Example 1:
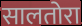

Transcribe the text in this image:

सालतोरा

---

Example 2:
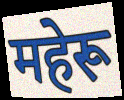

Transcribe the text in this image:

महेरू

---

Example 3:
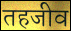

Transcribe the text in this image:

तहजीव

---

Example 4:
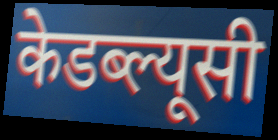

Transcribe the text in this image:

केडब्ल्यूसी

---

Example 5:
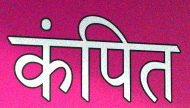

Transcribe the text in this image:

कंपित